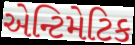
એન્ટિમેટિક